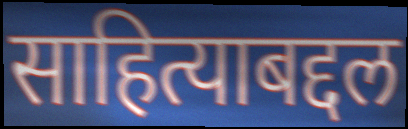
साहित्याबद्दल